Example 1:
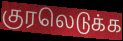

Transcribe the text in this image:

குரலெடுக்க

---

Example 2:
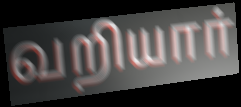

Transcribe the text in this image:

வறியார்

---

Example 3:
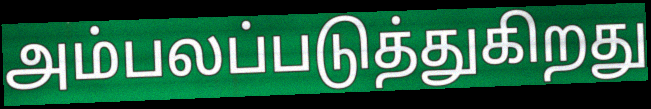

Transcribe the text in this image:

அம்பலப்படுத்துகிறது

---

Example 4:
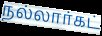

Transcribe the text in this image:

நல்லார்கட்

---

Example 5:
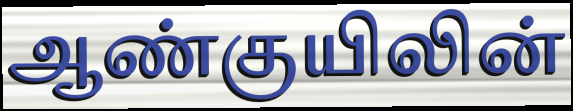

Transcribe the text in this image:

ஆண்குயிலின்